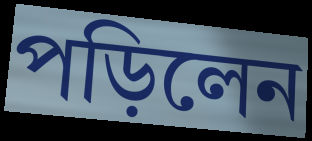
পড়িলেন